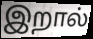
இறால்